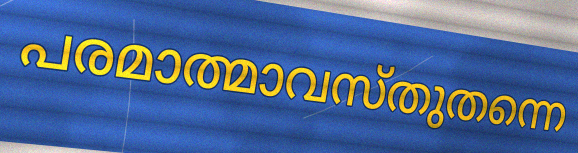
പരമാത്മാവസ്തുതന്നെ